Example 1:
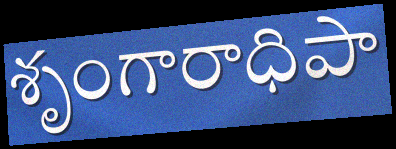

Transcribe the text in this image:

శృంగారాధిపా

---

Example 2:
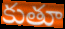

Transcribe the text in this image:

కుతూ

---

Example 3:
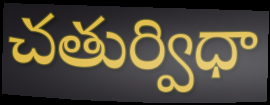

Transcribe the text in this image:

చతుర్విధా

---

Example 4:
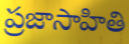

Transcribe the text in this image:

ప్రజాసాహితి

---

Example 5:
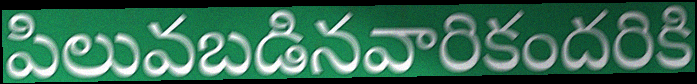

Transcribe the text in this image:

పిలువబడినవారికందరికి